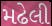
મઢેલી